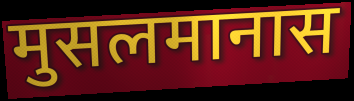
मुसलमानास